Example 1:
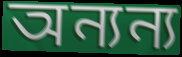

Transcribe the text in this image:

অন্যন্য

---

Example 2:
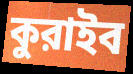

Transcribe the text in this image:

কুরাইব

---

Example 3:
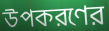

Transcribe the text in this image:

উপকরণের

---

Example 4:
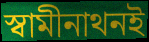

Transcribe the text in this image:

স্বামীনাথনই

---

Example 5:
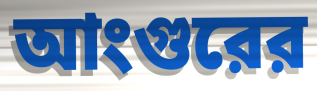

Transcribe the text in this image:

আংগুরের